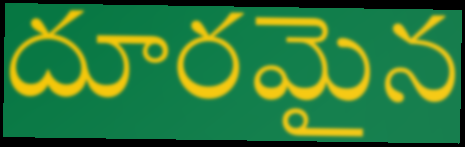
దూరమైన